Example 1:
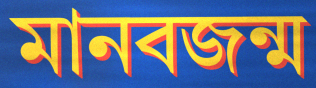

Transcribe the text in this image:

মানবজন্ম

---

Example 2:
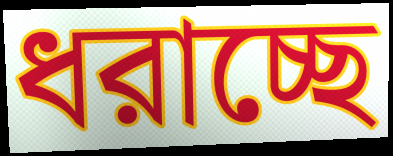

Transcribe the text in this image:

ধরাচ্ছে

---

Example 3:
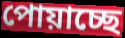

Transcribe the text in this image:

পোয়াচ্ছে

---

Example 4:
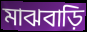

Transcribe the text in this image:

মাঝবাড়ি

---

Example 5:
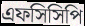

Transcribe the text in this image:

এফসিসিপি